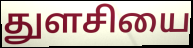
துளசியை